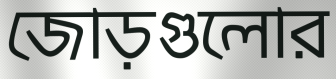
জোড়গুলোর